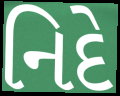
નિદે